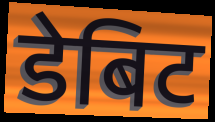
डेबिट